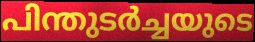
പിന്തുടർച്ചയുടെ